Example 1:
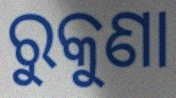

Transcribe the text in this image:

ରୁକୁଣା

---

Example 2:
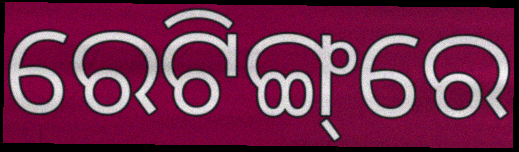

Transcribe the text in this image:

ରେଟିଙ୍ଗ୍‌ରେ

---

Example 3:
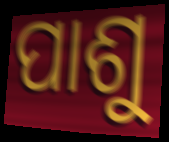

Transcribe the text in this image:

ପାଶୁ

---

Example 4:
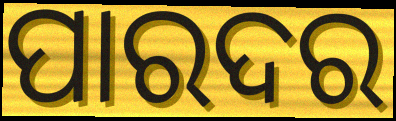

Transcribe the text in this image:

ପାରଦର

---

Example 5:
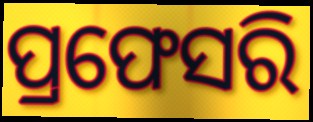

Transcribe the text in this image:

ପ୍ରଫେସରି